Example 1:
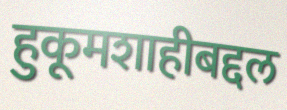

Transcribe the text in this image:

हुकूमशाहीबद्दल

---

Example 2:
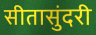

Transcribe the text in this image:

सीतासुंदरी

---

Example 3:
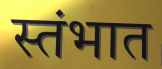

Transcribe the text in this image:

स्तंभात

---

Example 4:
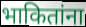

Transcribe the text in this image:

भाकितांना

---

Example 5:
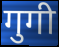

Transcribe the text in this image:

गुगी